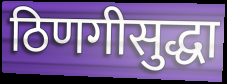
ठिणगीसुद्धा